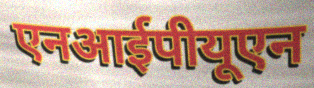
एनआईपीयूएन